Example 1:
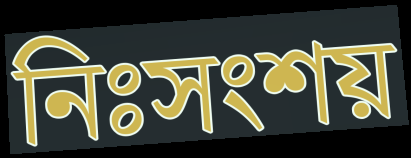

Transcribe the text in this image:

নিঃসংশয়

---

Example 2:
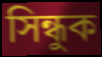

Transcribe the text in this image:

সিন্ধুক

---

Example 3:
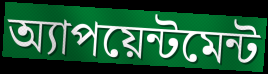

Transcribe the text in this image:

অ্যাপয়েন্টমেন্ট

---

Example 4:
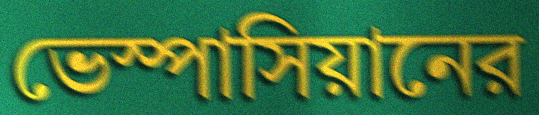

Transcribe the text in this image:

ভেস্পাসিয়ানের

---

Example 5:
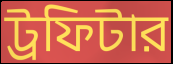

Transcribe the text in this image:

ট্রফিটার